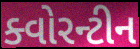
ક્વોરન્ટીન